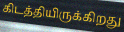
கிடத்தியிருக்கிறது